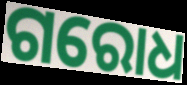
ଗରୋଧ